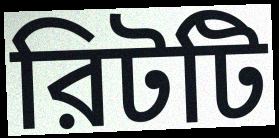
রিটটি